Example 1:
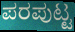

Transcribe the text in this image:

ಪರಪುಟ್ಟ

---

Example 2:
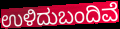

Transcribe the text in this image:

ಉಳಿದುಬಂದಿವೆ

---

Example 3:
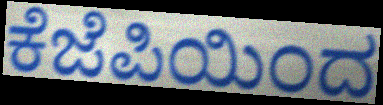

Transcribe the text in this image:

ಕೆಜೆಪಿಯಿಂದ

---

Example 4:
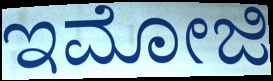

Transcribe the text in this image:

ಇಮೋಜಿ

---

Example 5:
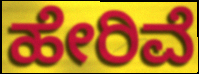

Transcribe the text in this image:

ಹೇರಿವೆ